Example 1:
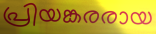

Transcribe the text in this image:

പ്രിയങ്കരരായ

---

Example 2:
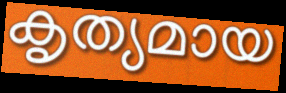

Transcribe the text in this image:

കൃത്യമായ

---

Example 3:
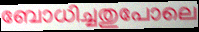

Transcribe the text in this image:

ബോധിച്ചതുപോലെ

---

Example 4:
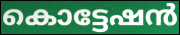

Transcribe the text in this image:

കൊട്ടേഷൻ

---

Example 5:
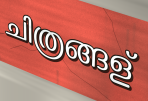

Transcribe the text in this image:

ചിത്രങ്ങള്